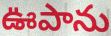
ఊపాను